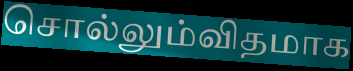
சொல்லும்விதமாக